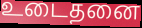
உடைதனை